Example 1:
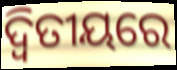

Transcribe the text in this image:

ଦ୍ଵିତୀୟରେ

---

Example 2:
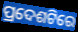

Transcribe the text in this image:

ପ୍ରଦେଶଟିରେ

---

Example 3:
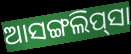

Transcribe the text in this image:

ଆସଙ୍ଗଲିପ୍‌ସା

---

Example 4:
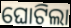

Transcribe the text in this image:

ଘୋଟିଲା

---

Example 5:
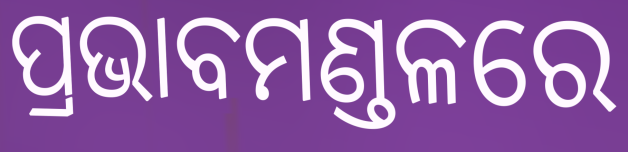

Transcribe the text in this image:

ପ୍ରଭାବମଣ୍ଡଳରେ